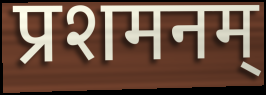
प्रशमनम्